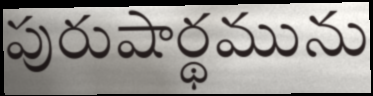
పురుషార్థమును